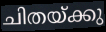
ചിതയ്ക്കു